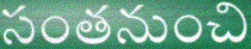
సంతనుంచి